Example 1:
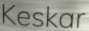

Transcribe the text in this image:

Keskar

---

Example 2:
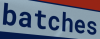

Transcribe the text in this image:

batches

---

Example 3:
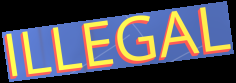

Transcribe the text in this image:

ILLEGAL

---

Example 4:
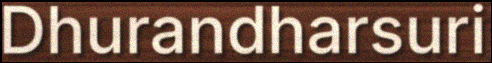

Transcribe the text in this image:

Dhurandharsuri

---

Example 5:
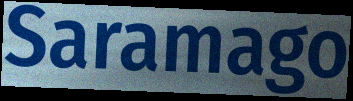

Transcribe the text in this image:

Saramago